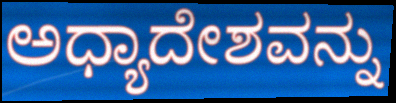
ಅಧ್ಯಾದೇಶವನ್ನು